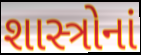
શાસ્ત્રોનાં